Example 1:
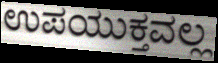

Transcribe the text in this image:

ಉಪಯುಕ್ತವಲ್ಲ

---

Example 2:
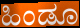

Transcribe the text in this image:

ಹಿಂಡೂ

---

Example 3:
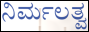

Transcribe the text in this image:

ನಿರ್ಮಲತ್ವ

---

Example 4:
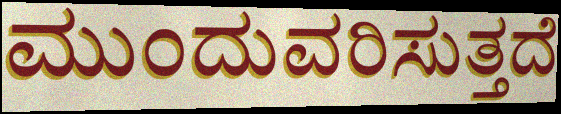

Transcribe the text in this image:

ಮುಂದುವರಿಸುತ್ತದೆ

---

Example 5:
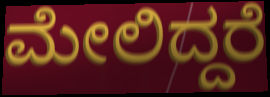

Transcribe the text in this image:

ಮೇಲಿದ್ದರೆ